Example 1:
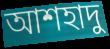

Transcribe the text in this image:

আশহাদু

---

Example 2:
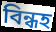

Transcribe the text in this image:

বিন্ধহ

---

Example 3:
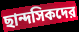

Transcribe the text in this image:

ছান্দসিকদের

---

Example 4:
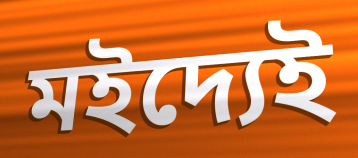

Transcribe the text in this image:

মইদ্যেই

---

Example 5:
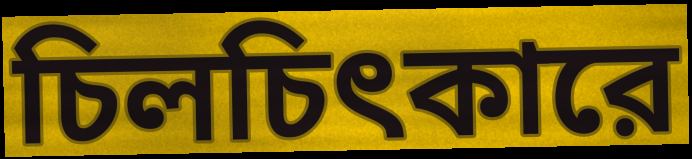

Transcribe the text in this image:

চিলচিৎকারে